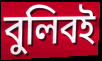
বুলিবই